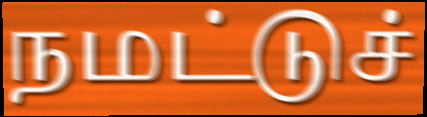
நமட்டுச்